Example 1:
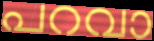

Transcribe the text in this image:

പറവാ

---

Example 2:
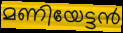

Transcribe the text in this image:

മണിയേട്ടൻ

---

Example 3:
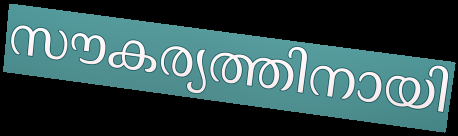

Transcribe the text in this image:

സൗകര്യത്തിനായി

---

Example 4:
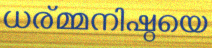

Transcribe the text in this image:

ധര്മ്മനിഷ്ഠയെ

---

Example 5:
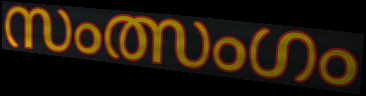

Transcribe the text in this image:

സംത്സംഗം